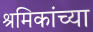
श्रमिकांच्या